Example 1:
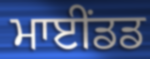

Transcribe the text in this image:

ਮਾਈਂਡਡ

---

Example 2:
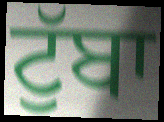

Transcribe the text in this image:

ਟੁੱਬਾ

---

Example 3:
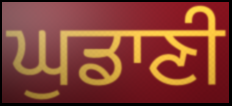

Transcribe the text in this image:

ਘੁਡਾਣੀ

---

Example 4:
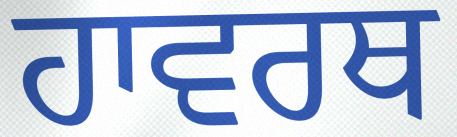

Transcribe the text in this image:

ਹਾਵਰਥ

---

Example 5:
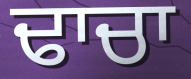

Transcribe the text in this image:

ਢਾਚਾ